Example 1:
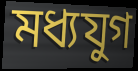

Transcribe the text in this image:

মধ্যযুগ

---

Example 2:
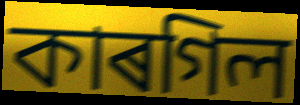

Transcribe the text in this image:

কাৰগিল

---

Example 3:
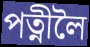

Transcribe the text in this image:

পত্নীলৈ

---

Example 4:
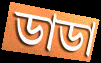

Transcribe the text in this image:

ডাডা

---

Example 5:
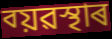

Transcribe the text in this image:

ব্য়ৱস্থাৰ